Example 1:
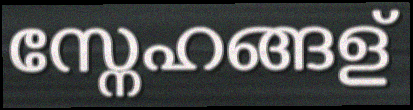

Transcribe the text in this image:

സ്നേഹങ്ങള്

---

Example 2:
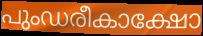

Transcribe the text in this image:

പുംഡരീകാക്ഷോ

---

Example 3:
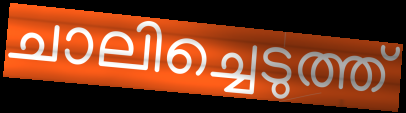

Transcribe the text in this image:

ചാലിച്ചെടുത്ത്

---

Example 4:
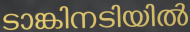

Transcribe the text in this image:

ടാങ്കിനടിയിൽ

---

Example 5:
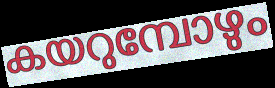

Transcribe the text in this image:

കയറുമ്പോഴും